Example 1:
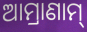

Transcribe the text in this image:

ଆମ୍ରାଣାମ୍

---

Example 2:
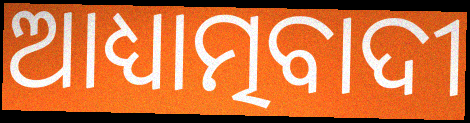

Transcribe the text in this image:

ଆଧ୍ୟାତ୍ମବାଦୀ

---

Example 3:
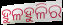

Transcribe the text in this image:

ହୁଳହୁଳିର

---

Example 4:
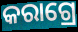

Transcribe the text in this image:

କରାଗ୍ରେ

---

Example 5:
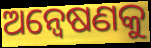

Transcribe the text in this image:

ଅନ୍ବେଷଣକୁ